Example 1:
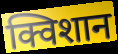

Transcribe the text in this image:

क्विशान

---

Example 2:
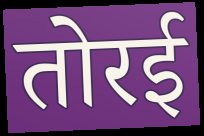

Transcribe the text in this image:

तोरई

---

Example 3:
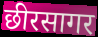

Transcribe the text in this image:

छीरसागर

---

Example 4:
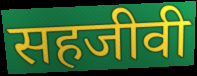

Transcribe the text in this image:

सहजीवी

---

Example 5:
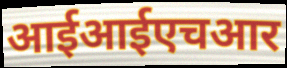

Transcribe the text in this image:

आईआईएचआर